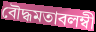
বৌদ্ধমতাবলম্বী